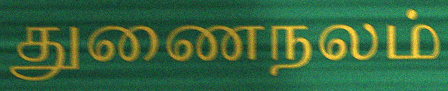
துணைநலம்